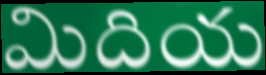
మిదియ